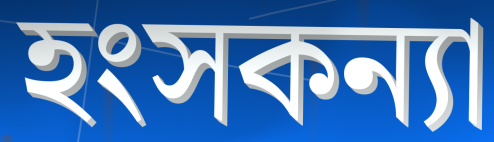
হংসকন্যা